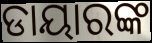
ଡାୟାରଙ୍କ